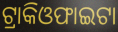
ଟ୍ରାକିଓଫାଇଟା